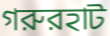
গরুরহাট